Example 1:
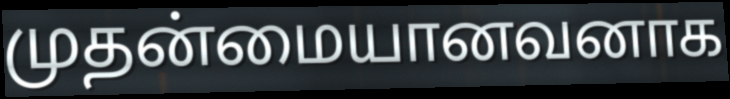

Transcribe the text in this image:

முதன்மையானவனாக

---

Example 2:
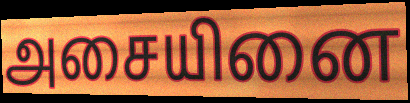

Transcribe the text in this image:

அசையினை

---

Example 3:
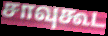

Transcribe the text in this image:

சாவுகூட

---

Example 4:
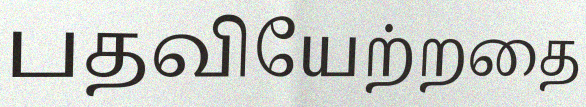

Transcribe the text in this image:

பதவியேற்றதை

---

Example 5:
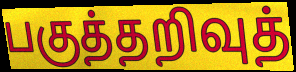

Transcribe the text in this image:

பகுத்தறிவுத்